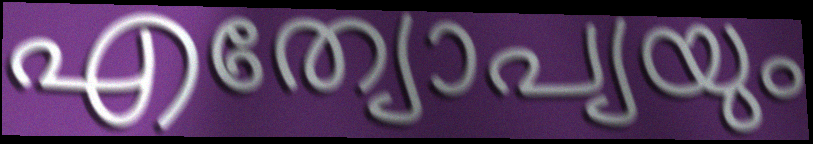
എത്യോപ്യയും